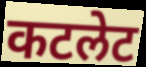
कटलेट